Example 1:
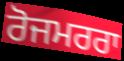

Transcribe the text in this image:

ਰੋਜਮਰਰਾ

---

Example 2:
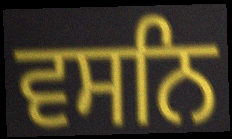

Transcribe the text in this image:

ਵਸਨਿ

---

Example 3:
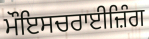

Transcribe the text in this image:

ਮੌਇਸਚਰਾਈਜ਼ਿੰਗ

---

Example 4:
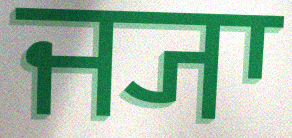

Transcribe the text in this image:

ਜ੍ਯਾ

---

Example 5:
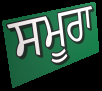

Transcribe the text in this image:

ਸਮੂਰਾ